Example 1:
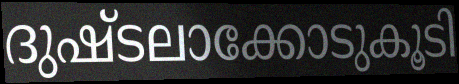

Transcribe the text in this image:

ദുഷ്ടലാക്കോടുകൂടി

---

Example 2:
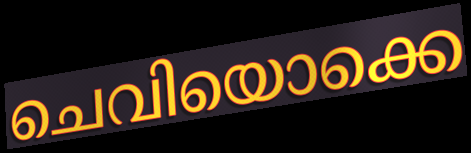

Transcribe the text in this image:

ചെവിയൊക്കെ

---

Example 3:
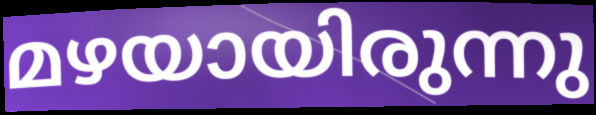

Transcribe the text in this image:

മഴയായിരുന്നു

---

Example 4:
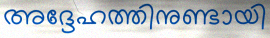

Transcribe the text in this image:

അദ്ദേഹത്തിനുണ്ടായി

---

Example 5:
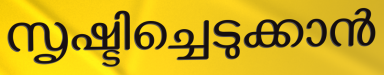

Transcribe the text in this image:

സൃഷ്ടിച്ചെടുക്കാൻ